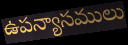
ఉపన్యాసములు